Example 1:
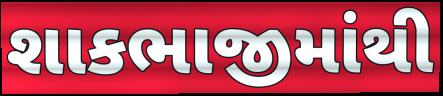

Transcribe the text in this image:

શાકભાજીમાંથી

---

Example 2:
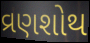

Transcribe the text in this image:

વ્રણશોથ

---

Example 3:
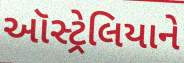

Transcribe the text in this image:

ઑસ્ટ્રેલિયાને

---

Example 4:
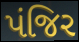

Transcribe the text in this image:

પંજિર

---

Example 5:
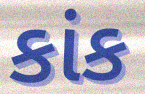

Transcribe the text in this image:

કાંક